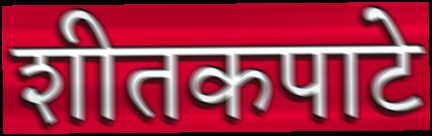
शीतकपाटे